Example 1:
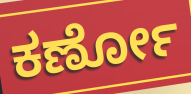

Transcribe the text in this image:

ಕರ್ಣೋ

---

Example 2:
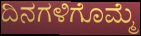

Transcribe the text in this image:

ದಿನಗಳಿಗೊಮ್ಮೆ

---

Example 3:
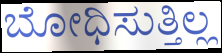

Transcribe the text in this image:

ಬೋಧಿಸುತ್ತಿಲ್ಲ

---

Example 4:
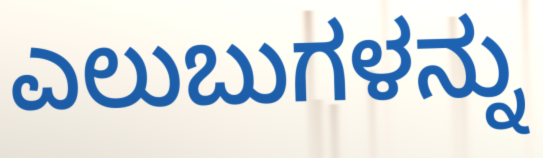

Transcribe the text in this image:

ಎಲುಬುಗಳನ್ನು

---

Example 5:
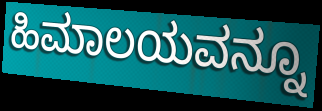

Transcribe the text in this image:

ಹಿಮಾಲಯವನ್ನೂ